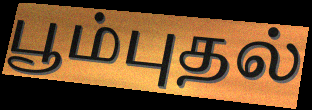
பூம்புதல்